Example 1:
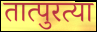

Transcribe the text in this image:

तात्पुरत्या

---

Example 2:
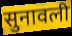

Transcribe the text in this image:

सुनावली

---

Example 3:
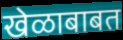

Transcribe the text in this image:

खेळाबाबत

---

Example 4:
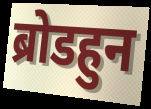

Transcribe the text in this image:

ब्रोडहुन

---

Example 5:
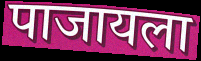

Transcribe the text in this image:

पाजायला